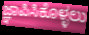
ಜ್ಞಾಪಿಸಿಕೊಳ್ಳಲು